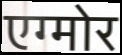
एग्मोर